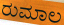
ರುಮಾಲ